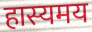
हास्यमय